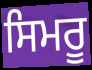
ਸਿਮਰੂ